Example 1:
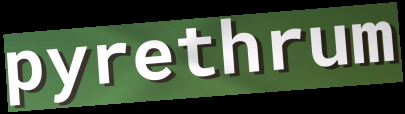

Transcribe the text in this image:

pyrethrum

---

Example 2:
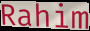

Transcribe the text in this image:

Rahim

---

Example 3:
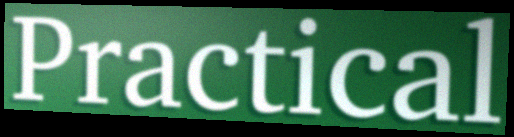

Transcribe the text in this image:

Practical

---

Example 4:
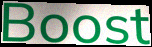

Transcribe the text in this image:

Boost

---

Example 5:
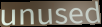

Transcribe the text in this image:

unused